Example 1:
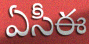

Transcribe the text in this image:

ఏసీఈ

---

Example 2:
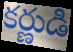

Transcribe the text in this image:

కర్ణుడి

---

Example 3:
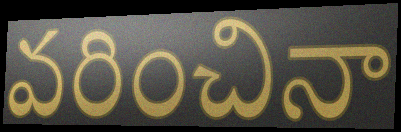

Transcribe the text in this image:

వరించినా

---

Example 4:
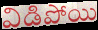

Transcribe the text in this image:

విడిపోయి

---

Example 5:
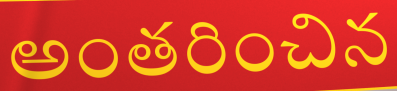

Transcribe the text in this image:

అంతరించిన